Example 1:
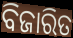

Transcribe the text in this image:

ବିଜାରିତ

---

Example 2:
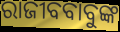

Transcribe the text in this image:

ରାଜୀବବାବୁଙ୍କ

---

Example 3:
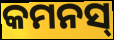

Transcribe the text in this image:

କମନସ୍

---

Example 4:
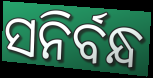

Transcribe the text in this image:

ସନିର୍ବନ୍ଧ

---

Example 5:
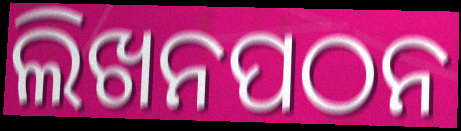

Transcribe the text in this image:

ଲିଖନପଠନ